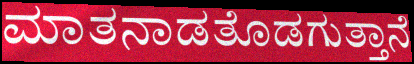
ಮಾತನಾಡತೊಡಗುತ್ತಾನೆ